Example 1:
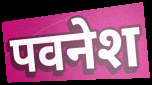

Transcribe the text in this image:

पवनेश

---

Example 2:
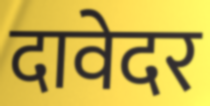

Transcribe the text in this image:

दावेदर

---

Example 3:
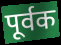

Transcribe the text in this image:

पूर्वक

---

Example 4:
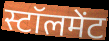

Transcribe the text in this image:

स्टॉलमेंट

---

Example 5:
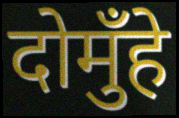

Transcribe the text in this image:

दोमुँहे